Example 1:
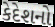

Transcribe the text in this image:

કેદેશનો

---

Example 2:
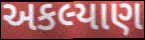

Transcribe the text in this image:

અકલ્યાણ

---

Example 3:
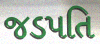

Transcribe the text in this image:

જડપતિ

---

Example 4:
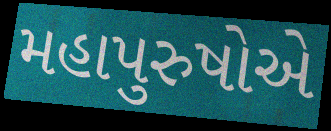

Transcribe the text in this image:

મહાપુરુષોએ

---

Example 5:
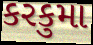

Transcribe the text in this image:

કરકુમા